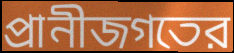
প্রানীজগতের